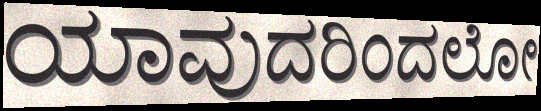
ಯಾವುದರಿಂದಲೋ